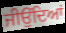
ਜੀਉਂਦਿਆਂ